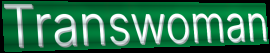
Transwoman